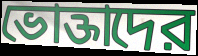
ভোক্তাদের